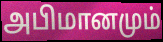
அபிமானமும்